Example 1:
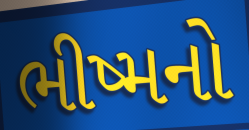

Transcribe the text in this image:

ભીષ્મનો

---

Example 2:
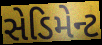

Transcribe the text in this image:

સેડિમેન્ટ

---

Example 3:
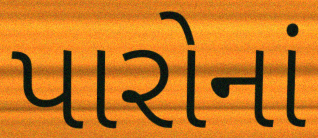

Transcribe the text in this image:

પારોનાં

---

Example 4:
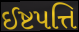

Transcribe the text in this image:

ઈષ્ટપત્તિ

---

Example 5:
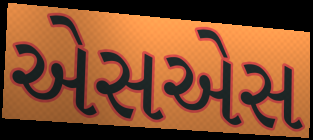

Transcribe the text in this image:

એસએસ